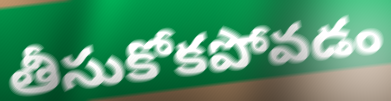
తీసుకోకపోవడం